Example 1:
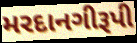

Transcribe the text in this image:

મરદાનગીરૂપી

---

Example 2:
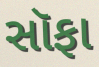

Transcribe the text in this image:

સૉફા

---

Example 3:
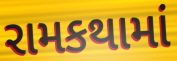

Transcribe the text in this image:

રામકથામાં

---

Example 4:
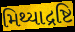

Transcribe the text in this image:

મિથ્યાદ્રષ્ટિ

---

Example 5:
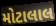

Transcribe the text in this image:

મોટાલાલ